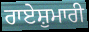
ਰਾਏਸ਼ੁਮਾਰੀ